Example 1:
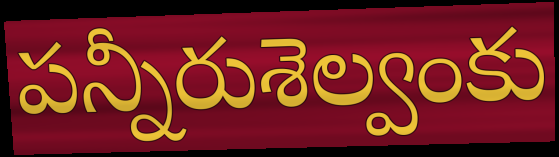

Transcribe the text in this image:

పన్నీరుశెల్వంకు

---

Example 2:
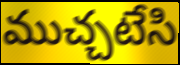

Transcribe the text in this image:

ముచ్చటేసి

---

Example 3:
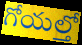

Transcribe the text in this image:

గోయల్తో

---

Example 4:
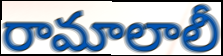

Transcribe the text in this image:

రామాలాలీ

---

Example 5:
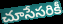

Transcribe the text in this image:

చూసేసరికీ